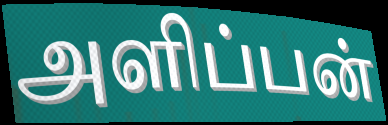
அளிப்பன்